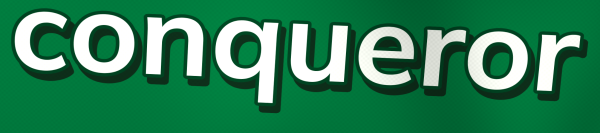
conqueror